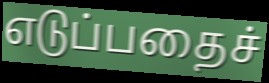
எடுப்பதைச்